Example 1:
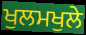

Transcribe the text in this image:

ਖੁਲਮਖੁਲੇ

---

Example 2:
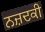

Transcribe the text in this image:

ਨਜ਼ਦਕੀ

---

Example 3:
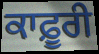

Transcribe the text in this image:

ਕਾਫ਼ੂਰੀ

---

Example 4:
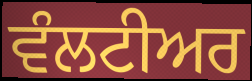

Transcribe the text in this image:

ਵੰਲਟੀਅਰ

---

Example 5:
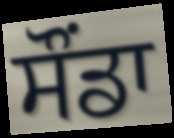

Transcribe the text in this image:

ਸੌਂਡਾ